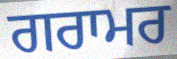
ਗਰਾਮਰ